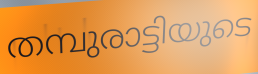
തമ്പുരാട്ടിയുടെ